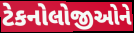
ટેકનોલોજીઓને